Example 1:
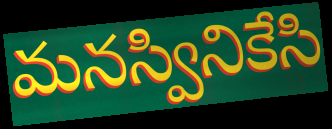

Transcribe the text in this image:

మనస్వినికేసి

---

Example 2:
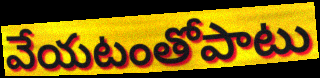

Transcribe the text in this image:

వేయటంతోపాటు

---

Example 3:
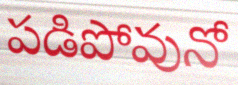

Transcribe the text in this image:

పడిపోవునో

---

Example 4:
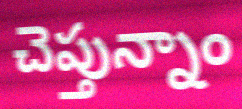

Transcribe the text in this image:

చెప్తున్నాం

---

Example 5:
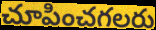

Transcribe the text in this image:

చూపించగలరు